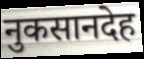
नुकसानदेह